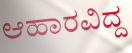
ಆಹಾರವಿದ್ದ